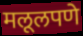
मलूलपणे